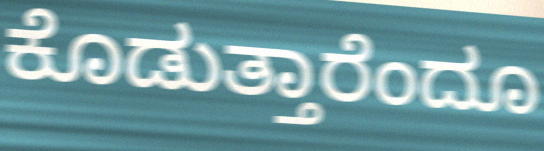
ಕೊಡುತ್ತಾರೆಂದೂ